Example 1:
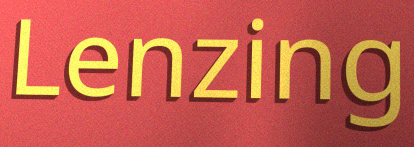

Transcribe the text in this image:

Lenzing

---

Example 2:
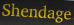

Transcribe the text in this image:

Shendage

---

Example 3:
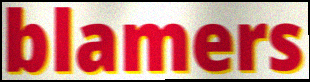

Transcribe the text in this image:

blamers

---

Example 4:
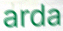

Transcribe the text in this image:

arda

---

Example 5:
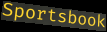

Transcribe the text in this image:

Sportsbook